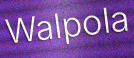
Walpola